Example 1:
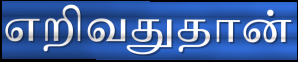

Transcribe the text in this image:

எறிவதுதான்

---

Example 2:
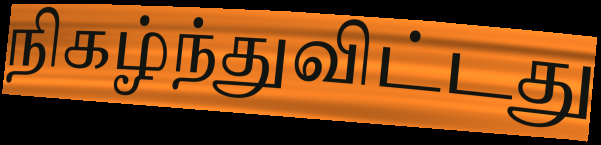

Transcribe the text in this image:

நிகழ்ந்துவிட்டது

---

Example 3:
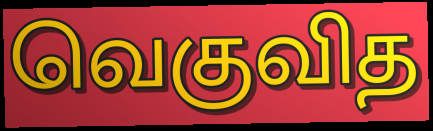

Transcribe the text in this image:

வெகுவித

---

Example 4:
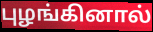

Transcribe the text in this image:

புழங்கினால்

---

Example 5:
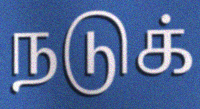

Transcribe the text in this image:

நடுக்